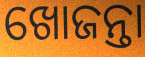
ଖୋଜନ୍ତା